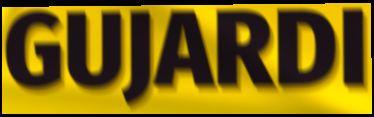
GUJARDI